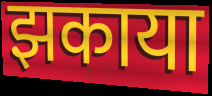
झकाया